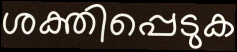
ശക്തിപ്പെടുക